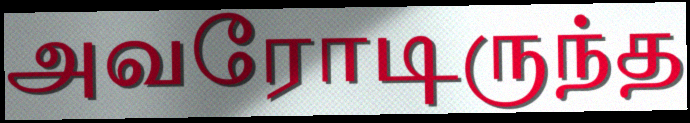
அவரோடிருந்த